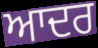
ਆਦਰ